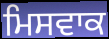
ਮਿਸਵਾਕ